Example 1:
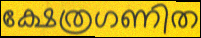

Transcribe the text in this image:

ക്ഷേത്രഗണിത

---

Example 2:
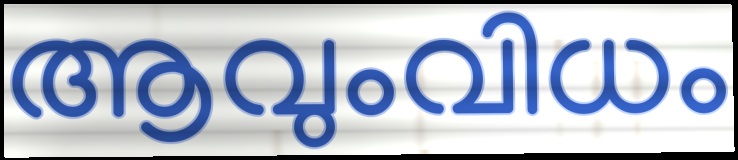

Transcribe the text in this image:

ആവുംവിധം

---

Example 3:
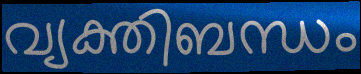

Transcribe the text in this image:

വ്യക്തിബന്ധം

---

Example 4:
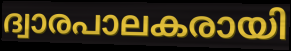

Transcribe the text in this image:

ദ്വാരപാലകരായി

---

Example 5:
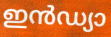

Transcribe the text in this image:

ഇൻഡ്യാ